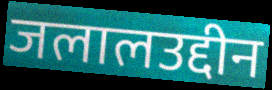
जलालउद्दीन